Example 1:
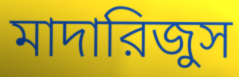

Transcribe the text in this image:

মাদারিজুস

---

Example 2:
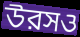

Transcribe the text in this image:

উরসও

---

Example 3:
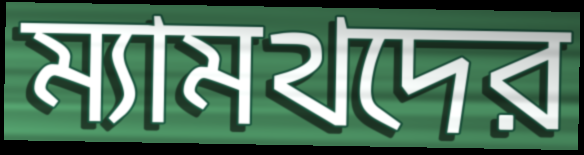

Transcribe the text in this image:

ম্যামথদের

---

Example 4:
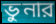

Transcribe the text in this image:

ভুনার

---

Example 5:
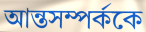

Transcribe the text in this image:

আন্তসম্পর্ককে